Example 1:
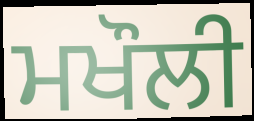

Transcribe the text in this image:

ਮਖੌਲੀ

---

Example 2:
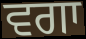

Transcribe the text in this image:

ਵਗਾ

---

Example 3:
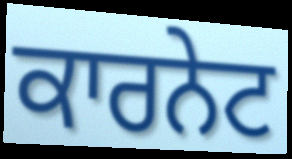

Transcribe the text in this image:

ਕਾਰਨੇਟ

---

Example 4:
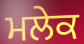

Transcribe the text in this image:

ਮਲੇਕ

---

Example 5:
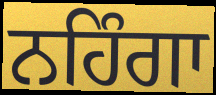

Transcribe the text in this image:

ਨਹਿੰਗਾ